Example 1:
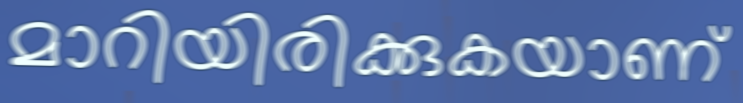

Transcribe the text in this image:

മാറിയിരിക്കുകയാണ്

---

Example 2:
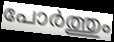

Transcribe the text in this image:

പോർത്തും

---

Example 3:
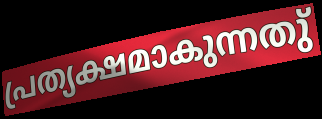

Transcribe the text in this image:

പ്രത്യക്ഷമാകുന്നതു്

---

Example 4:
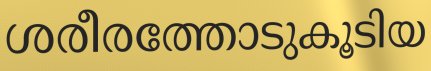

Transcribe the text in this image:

ശരീരത്തോടുകൂടിയ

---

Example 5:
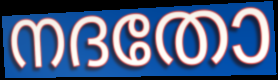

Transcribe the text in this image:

നദതോ